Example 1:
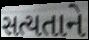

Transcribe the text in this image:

સત્યતાને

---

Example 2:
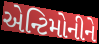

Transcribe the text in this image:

એન્ટિમોનીને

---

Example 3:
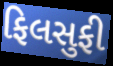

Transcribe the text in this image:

ફિલસુફી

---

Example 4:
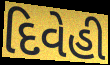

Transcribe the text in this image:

દિવેહી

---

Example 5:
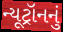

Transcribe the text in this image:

ન્યૂટ્રૉનનું